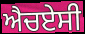
ਐਚਏਸੀ